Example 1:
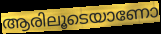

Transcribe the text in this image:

ആരിലൂടെയാണോ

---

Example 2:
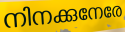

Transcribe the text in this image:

നിനക്കുനേരേ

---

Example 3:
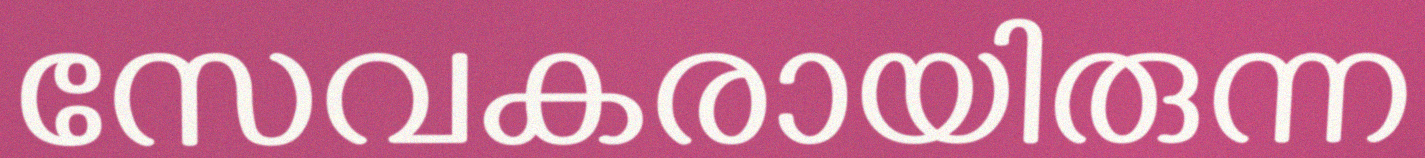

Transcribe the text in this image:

സേവകരായിരുന്ന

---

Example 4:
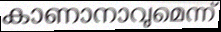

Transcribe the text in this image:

കാണാനാവുമെന്ന്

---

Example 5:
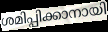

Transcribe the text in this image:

ശമിപ്പിക്കാനായി